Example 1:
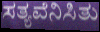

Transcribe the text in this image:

ಸತ್ಯವೆನಿಸಿತು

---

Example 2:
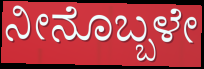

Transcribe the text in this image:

ನೀನೊಬ್ಬಳೇ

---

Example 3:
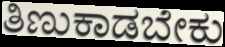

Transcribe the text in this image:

ತಿಣುಕಾಡಬೇಕು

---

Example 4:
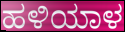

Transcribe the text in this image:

ಹಳಿಯಾಳ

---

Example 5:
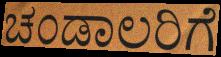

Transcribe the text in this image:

ಚಂಡಾಲರಿಗೆ